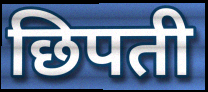
छिपती